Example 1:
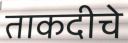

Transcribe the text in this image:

ताकदीचे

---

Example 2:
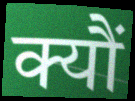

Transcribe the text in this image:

क्यौं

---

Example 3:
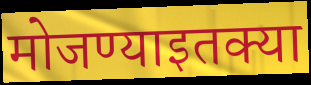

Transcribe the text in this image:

मोजण्याइतक्या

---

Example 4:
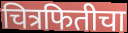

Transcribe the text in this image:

चित्रफितीचा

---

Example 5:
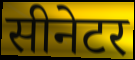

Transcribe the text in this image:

सीनेटर